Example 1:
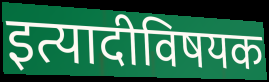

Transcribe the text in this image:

इत्यादीविषयक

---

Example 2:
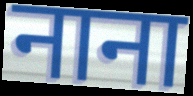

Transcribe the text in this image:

नाना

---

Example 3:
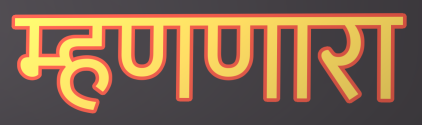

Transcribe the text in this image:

म्हणणारा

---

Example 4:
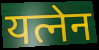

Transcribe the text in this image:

यत्नेन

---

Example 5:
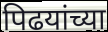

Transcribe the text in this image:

पिढयांच्या